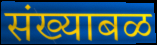
संख्याबळ